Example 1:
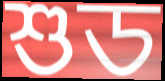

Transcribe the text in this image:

শুড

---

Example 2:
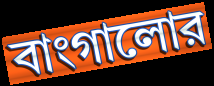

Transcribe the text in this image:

বাংগালোর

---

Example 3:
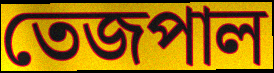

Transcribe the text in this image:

তেজপাল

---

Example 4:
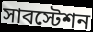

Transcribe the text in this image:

সাবস্টেশন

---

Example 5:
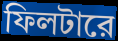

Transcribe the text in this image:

ফিলটারে